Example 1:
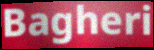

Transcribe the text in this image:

Bagheri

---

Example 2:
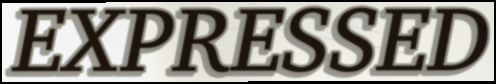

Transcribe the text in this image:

EXPRESSED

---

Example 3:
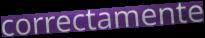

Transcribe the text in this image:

correctamente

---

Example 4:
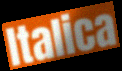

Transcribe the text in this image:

Italica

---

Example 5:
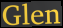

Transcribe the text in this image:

Glen